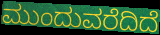
ಮುಂದುವರೆದಿದೆ